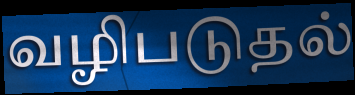
வழிபடுதல்